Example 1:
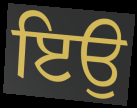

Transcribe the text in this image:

ਇਉ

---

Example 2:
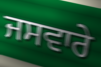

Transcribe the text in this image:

ਜਸਵਾਰੇ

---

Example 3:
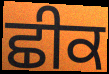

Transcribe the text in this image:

ਛੀਕ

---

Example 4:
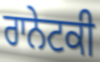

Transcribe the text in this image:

ਰਾਨੇਟਕੀ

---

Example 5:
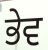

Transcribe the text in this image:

ਭੇਵ